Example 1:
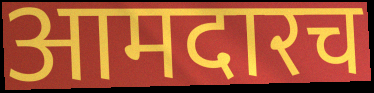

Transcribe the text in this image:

आमदारच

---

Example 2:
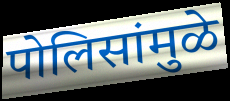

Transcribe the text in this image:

पोलिसांमुळे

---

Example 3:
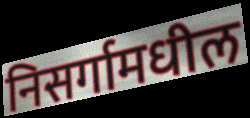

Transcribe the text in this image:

निसर्गामधील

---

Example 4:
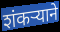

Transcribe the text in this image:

शंकर्‍याने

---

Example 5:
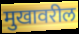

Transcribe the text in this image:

मुखावरील